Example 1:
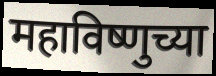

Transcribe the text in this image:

महाविष्णुच्या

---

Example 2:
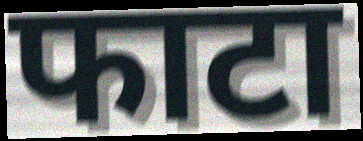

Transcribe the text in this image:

फाटा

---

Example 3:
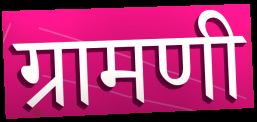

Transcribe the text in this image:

ग्रामणी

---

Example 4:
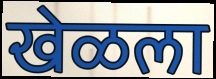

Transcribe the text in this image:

खेळला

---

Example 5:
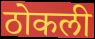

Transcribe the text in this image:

ठोकली